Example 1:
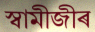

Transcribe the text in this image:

স্বামীজীৰ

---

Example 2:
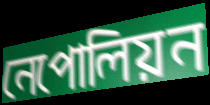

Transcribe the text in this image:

নেপোলিয়ন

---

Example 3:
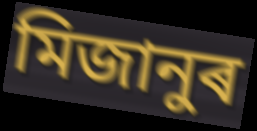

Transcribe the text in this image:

মিজানুৰ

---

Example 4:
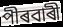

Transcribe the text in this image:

পীৰবাৰী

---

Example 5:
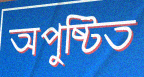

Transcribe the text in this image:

অপুষ্টিত